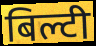
बिल्टी